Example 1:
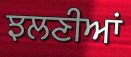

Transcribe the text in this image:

ਝਲਣੀਆਂ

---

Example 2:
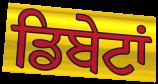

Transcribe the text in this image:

ਡਿਬੇਟਾਂ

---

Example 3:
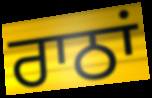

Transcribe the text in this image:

ਰਾਠਾਂ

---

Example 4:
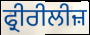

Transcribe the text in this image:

ਫ੍ਰੀਰੀਲੀਜ਼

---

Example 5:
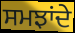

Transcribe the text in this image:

ਸਮਝਾਂਦੇ